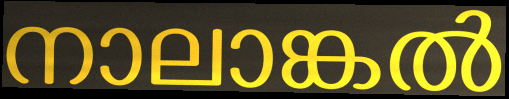
നാലാങ്കൽ